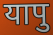
यापु